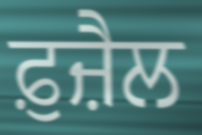
ਫ਼ੁਜ਼ੈਲ